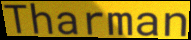
Tharman